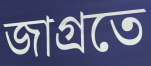
জাগ্রতে